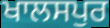
ਖਾਲਸਪੁਰ